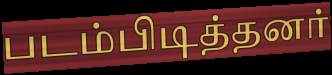
படம்பிடித்தனர்